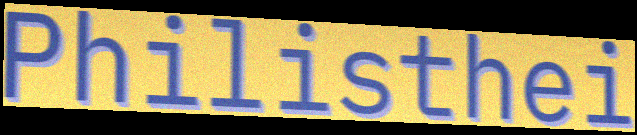
Philisthei